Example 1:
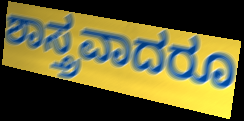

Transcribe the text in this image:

ಶಾಸ್ತ್ರವಾದರೂ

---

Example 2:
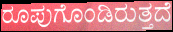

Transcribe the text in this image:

ರೂಪುಗೊಂಡಿರುತ್ತದೆ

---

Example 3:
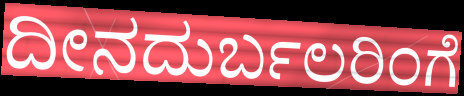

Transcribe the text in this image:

ದೀನದುರ್ಬಲರಿಂಗೆ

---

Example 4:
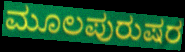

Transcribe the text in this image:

ಮೂಲಪುರುಷರ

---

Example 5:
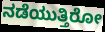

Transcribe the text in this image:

ನಡೆಯುತ್ತಿರೋ